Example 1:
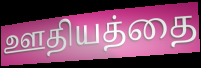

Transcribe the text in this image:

ஊதியத்தை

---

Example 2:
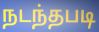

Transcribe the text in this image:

நடந்தபடி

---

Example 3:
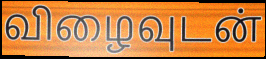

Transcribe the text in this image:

விழைவுடன்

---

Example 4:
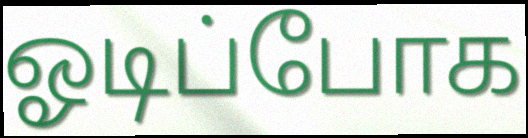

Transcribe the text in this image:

ஓடிப்போக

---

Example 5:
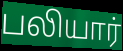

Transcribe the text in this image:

பலியார்